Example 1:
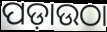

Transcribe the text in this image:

ପଡ଼ାଉଠା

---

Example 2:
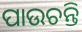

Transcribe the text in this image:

ପାଉଚନ୍ତି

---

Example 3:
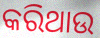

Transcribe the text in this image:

କରିଥାଉ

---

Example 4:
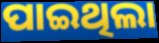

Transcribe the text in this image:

ପାଇଥିଲା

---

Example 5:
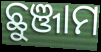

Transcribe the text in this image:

ଛୁଞ୍ଜାମ